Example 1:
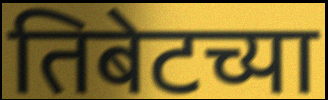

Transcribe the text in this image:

तिबेटच्या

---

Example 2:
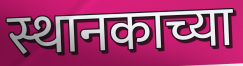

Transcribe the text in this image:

स्थानकाच्या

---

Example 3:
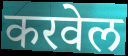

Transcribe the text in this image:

करवेल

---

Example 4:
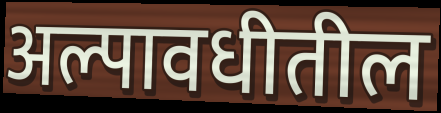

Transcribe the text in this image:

अल्पावधीतील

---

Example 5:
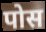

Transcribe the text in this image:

पोस